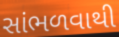
સાંભળવાથી